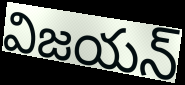
విజయన్